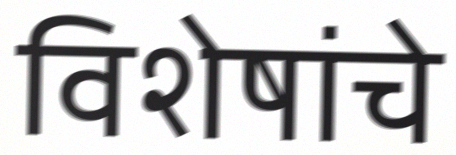
विशेषांचे